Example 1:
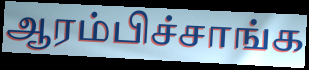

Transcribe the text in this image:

ஆரம்பிச்சாங்க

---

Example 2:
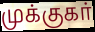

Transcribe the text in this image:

முக்குகர்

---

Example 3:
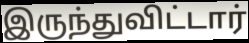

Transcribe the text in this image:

இருந்துவிட்டார்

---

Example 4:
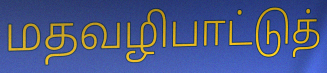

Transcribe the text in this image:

மதவழிபாட்டுத்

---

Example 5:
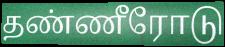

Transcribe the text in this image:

தண்ணீரோடு